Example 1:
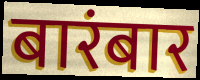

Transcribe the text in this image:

बारंबार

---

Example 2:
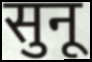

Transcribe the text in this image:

सुनू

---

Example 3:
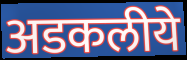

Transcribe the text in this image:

अडकलीये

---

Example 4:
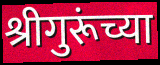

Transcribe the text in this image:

श्रीगुरूंच्या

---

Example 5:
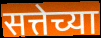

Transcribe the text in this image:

सत्तेच्या